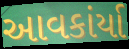
આવકાંર્યા